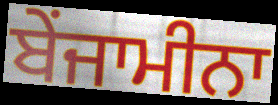
ਬੇਂਜਾਮੀਨਾ